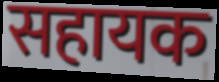
सहायक